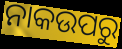
ନାକଉପରୁ